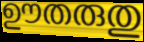
ഊതരുതു